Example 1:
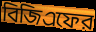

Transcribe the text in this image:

বিজিএফের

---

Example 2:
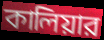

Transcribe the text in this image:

কালিয়ার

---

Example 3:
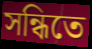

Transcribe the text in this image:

সন্ধিতে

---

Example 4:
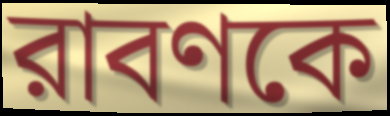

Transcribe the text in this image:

রাবণকে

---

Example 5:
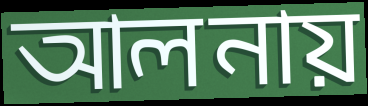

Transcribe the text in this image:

আলনায়